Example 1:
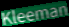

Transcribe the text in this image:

Kleeman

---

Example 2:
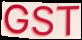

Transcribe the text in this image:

GST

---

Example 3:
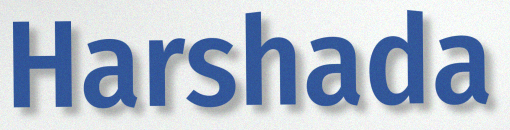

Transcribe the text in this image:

Harshada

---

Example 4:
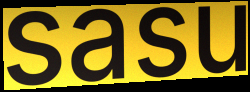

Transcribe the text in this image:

sasu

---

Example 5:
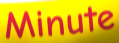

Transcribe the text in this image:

Minute